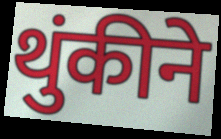
थुंकीने